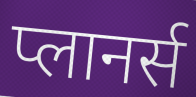
प्लानर्स